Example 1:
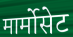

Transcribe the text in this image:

मार्मोसेट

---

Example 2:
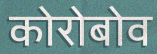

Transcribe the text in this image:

कोरोबोव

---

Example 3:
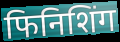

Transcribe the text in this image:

फिनिशिंग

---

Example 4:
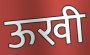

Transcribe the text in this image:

ऊखी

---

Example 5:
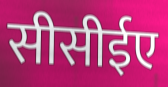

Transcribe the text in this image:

सीसीईए